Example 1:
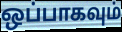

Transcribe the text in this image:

ஒப்பாகவும்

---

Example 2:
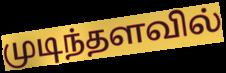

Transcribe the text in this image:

முடிந்தளவில்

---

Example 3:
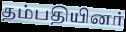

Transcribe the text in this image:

தம்பதியினர்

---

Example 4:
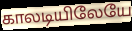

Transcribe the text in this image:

காலடியிலேயே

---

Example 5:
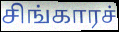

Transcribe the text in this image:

சிங்காரச்